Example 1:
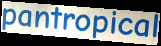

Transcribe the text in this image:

pantropical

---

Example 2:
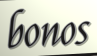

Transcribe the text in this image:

bonos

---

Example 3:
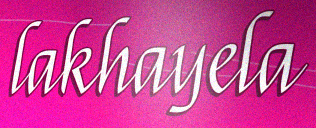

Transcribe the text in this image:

lakhayela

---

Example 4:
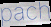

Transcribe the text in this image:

pach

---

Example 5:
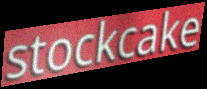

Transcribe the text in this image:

stockcake